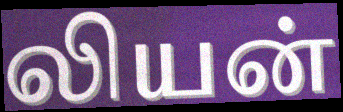
லியன்